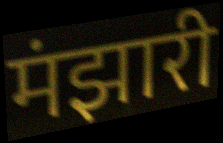
मंझारी